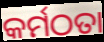
କର୍ମଠତା